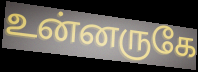
உன்னருகே